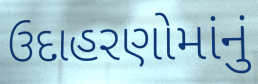
ઉદાહરણોમાંનું